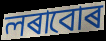
লৰাবোৰ